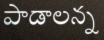
పాడాలన్న